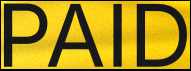
PAID